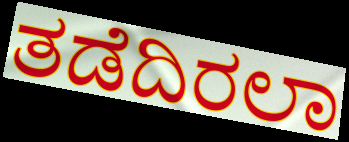
ತಡೆದಿರಲಾ